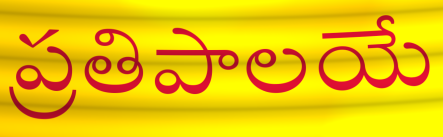
ప్రతిపాలయే